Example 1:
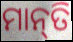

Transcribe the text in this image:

ମାନ୍‌ତି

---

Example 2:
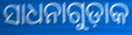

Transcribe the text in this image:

ସାଧନାଗୁଡ଼ାକ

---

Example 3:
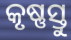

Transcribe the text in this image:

କୃଷ୍ଣସ୍ତୁ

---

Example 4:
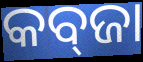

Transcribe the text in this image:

କବ୍‍ଜା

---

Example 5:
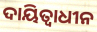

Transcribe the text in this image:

ଦାୟିତ୍ଵାଧୀନ